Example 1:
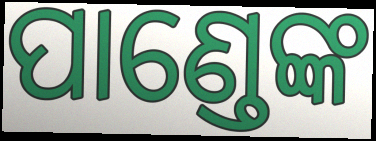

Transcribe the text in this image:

ପାଣ୍ଡେଙ୍କ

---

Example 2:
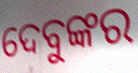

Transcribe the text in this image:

ଦେବୁଙ୍କର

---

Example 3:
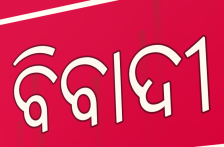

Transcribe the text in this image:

ବିବାଦୀ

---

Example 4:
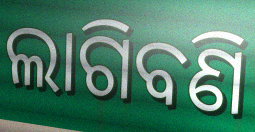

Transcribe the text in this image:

ଲାଗିବଣି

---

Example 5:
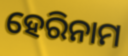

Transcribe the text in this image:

ହେରିନାମ